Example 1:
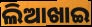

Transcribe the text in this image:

ଲିଆଖାଇ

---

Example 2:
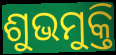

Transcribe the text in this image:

ଶୁଭମୁକ୍ତି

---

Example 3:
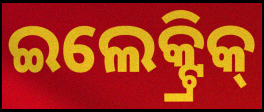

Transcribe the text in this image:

ଇଲେକ୍ଟ୍ରିକ୍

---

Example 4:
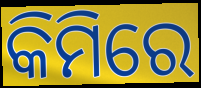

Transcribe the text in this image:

କିମିରେ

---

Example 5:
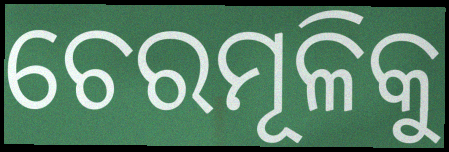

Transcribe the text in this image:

ଚେରମୂଳିକୁ